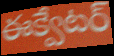
ఈక్వేటర్